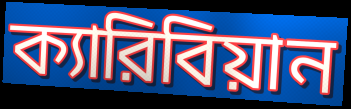
ক্যারিবিয়ান